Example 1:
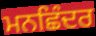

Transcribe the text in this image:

ਮਨਛਿੰਦਰ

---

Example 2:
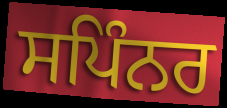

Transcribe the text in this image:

ਸਪਿੰਨਰ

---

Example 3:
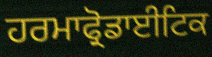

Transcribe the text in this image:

ਹਰਮਾਫ੍ਰੋਡਾਈਟਿਕ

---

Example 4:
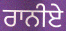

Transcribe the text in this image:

ਰਾਨੀਏ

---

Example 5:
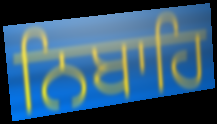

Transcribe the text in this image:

ਨਿਬਾਹਿ